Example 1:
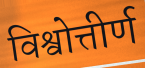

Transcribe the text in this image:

विश्वोत्तीर्ण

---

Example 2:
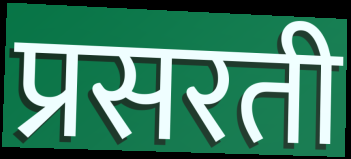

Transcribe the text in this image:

प्रसरती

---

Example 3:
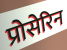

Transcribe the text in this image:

प्रोसेरिन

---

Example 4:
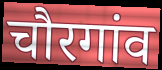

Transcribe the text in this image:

चौरगांव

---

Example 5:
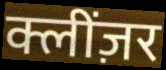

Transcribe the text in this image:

क्लींज़र